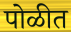
पोळीत